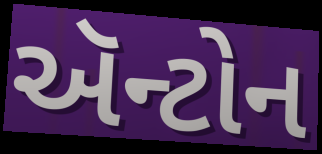
ઍન્ટોન